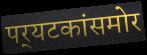
पर्यटकांसमोर